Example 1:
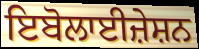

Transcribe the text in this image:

ਇਬੋਲਾਈਜ਼ੇਸ਼ਨ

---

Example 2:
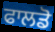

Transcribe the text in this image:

ਫਾਲਡੋ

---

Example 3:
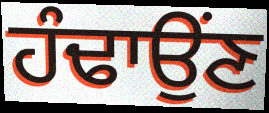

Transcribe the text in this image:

ਹੰਢਾਉਂਣ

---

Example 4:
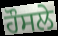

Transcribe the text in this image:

ਹੌਸਲੇ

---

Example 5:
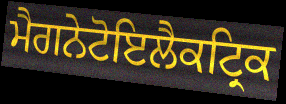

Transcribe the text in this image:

ਮੈਗਨੇਟੋਇਲੈਕਟ੍ਰਿਕ